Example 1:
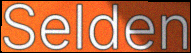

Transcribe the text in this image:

Selden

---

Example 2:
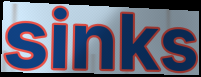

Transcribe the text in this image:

sinks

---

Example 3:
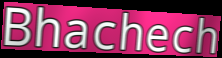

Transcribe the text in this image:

Bhachech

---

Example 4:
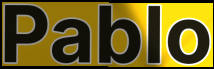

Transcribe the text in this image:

Pablo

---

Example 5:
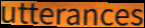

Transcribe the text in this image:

utterances